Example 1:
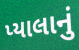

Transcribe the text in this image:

પ્યાલાનું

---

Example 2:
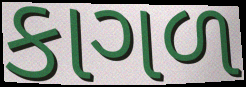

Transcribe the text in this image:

કાગળ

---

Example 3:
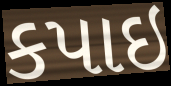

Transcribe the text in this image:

કપાઇ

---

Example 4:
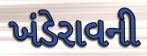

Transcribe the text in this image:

ખંડેરાવની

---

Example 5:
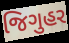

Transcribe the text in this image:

જિગુહર